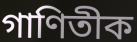
গাণিতীক